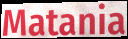
Matania